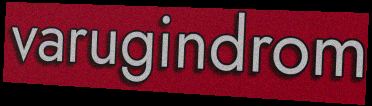
varugindrom